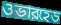
ওভারহেড